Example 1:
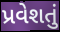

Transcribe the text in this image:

પ્રવેશતું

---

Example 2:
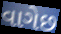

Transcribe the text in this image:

વાગેછ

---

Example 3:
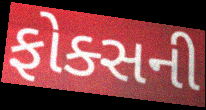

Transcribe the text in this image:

ફોક્સની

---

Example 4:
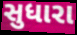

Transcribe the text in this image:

સુધારા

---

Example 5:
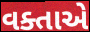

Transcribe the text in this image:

વક્તાએ